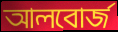
আলবোর্জ